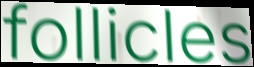
follicles